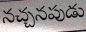
నచ్చనపుడు